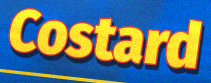
Costard